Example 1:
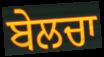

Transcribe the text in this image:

ਬੇਲਚਾ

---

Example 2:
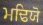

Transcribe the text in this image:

ਮਢਿਯੋ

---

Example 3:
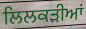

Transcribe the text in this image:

ਲਿਲਕੜੀਆਂ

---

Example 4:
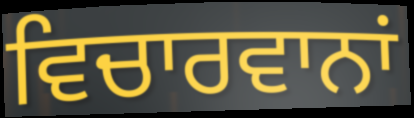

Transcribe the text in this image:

ਵਿਚਾਰਵਾਨਾਂ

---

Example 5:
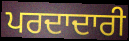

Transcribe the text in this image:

ਪਰਦਾਦਾਰੀ